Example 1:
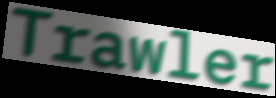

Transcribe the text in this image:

Trawler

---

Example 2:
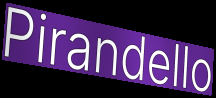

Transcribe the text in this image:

Pirandello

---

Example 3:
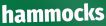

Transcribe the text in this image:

hammocks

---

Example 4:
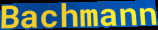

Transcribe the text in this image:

Bachmann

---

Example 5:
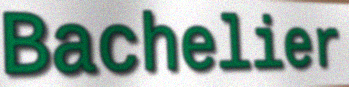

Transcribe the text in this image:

Bachelier